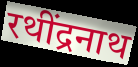
रथींद्रनाथ